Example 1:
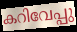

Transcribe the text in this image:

കറിവേപ്പു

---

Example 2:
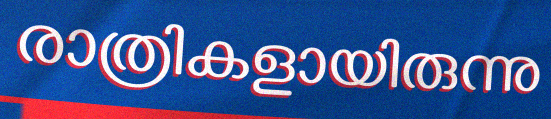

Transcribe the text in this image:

രാത്രികളായിരുന്നു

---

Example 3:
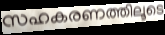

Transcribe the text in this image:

സഹകരണത്തിലൂടെ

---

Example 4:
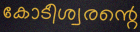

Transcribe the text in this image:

കോടീശ്വരന്റെ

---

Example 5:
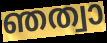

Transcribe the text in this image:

ഞത്വാ